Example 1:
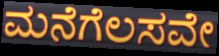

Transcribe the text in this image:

ಮನೆಗೆಲಸವೇ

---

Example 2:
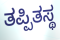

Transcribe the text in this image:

ತಪ್ಪಿತಸ್ಥ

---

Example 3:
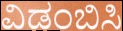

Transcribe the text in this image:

ವಿಡಂಬಿಸಿ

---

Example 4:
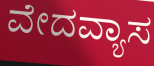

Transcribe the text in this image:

ವೇದವ್ಯಾಸ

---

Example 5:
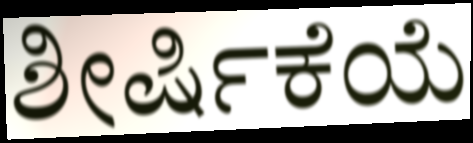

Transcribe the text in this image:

ಶೀರ್ಷಿಕೆಯೆ